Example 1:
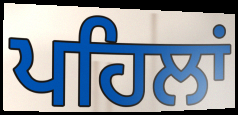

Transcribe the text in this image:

ਪਹਿਲਾਂ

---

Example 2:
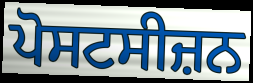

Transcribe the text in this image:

ਪੋਸਟਸੀਜ਼ਨ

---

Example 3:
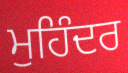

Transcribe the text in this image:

ਮੁਹਿੰਦਰ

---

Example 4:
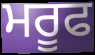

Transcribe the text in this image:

ਮਰੂਫ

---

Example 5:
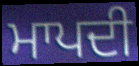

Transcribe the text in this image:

ਮਾਪਦੀ